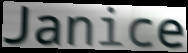
Janice